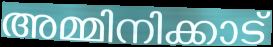
അമ്മിനിക്കാട്